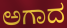
ಅಗಾದ